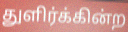
துளிர்க்கின்ற